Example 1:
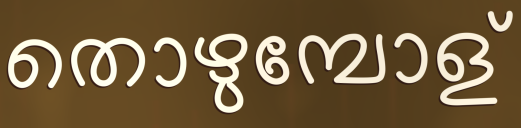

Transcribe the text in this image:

തൊഴുമ്പോള്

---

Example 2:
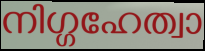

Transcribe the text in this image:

നിഗ്ഗഹേത്വാ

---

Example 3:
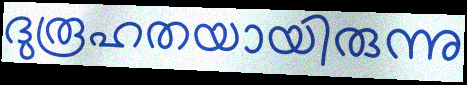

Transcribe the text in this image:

ദുരൂഹതയായിരുന്നു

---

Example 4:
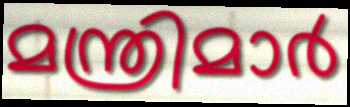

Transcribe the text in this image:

മന്ത്രിമാർ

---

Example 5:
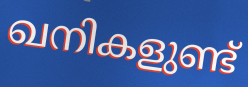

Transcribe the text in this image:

ഖനികളുണ്ട്